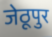
जेठूपुर